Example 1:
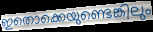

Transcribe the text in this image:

ഇതൊക്കെയുണ്ടെങ്കിലും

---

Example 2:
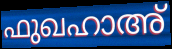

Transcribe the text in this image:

ഫുഖഹാഅ്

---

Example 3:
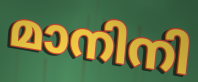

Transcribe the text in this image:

മാനിനി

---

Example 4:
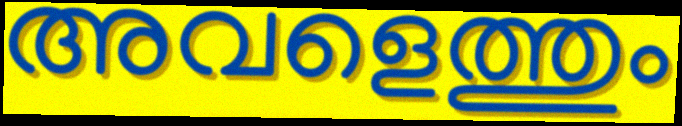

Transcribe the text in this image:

അവളെത്തും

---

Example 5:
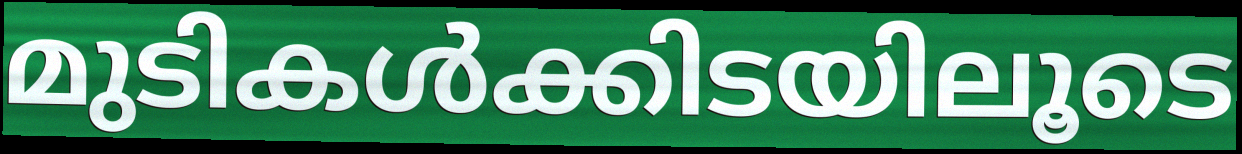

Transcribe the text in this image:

മുടികൾക്കിടയിലൂടെ